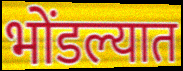
भोंडल्यात